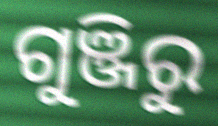
ଗୁଞ୍ଜିରୁ